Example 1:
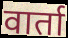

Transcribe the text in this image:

वार्ता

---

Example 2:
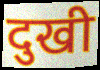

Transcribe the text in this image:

दुखी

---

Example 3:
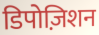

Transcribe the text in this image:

डिपोज़िशन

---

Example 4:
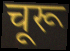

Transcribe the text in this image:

चूरू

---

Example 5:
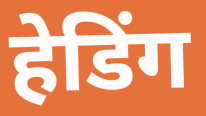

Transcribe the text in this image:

हेडिंग